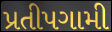
પ્રતીપગામી